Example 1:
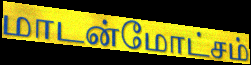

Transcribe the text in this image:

மாடன்மோட்சம்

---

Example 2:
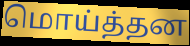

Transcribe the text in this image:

மொய்த்தன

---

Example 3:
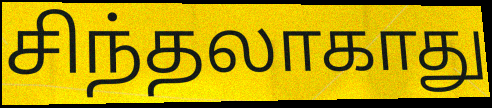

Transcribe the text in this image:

சிந்தலாகாது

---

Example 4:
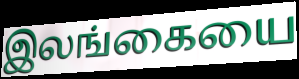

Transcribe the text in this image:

இலங்கையை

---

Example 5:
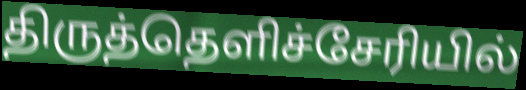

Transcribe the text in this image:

திருத்தெளிச்சேரியில்